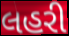
લહરી